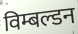
विम्बल्डन